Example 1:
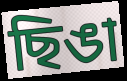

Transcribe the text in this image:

ছিঙা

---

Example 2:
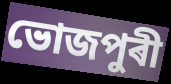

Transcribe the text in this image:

ভোজপুৰী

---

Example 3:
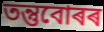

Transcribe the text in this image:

তন্তুবোৰৰ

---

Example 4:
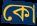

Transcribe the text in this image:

কো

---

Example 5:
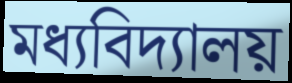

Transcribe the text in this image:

মধ্যবিদ্যালয়